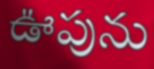
ఊపును